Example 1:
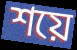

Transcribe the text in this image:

শয়ে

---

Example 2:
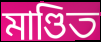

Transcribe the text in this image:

মাণ্ডিত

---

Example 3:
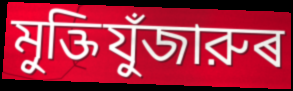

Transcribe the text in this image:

মুক্তিযুঁজাৰুৰ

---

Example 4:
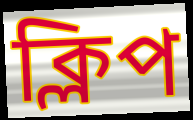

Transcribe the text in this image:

ক্লিপ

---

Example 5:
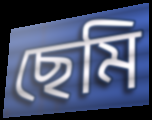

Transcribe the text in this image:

ছেমি